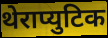
थेराप्युटिक